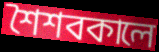
শৈশবকালে